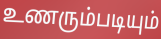
உணரும்படியும்